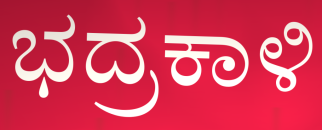
ಭದ್ರಕಾಳಿ